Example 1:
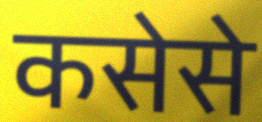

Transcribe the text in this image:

कसेसे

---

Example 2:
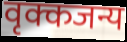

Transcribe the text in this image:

वृक्कजन्य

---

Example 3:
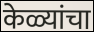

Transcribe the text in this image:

केळ्यांचा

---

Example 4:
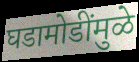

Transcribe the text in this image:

घडामोडींमुळे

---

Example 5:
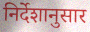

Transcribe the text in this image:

निर्देशानुसार